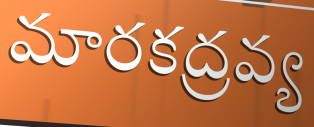
మారకద్రవ్య